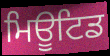
ਮਿਊਟਿਡ